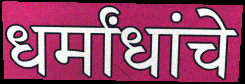
धर्मांधांचे